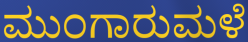
ಮುಂಗಾರುಮಳೆ